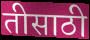
तीसाठी